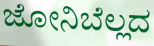
ಜೋನಿಬೆಲ್ಲದ